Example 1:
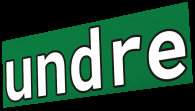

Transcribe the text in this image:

undre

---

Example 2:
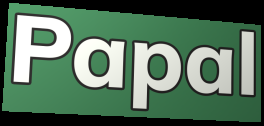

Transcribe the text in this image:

Papal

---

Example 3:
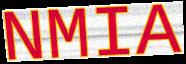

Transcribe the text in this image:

NMIA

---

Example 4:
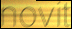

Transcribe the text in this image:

novit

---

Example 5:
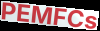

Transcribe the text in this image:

PEMFCs